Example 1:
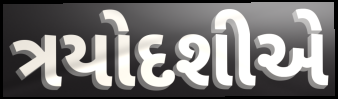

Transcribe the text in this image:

ત્રયોદશીએ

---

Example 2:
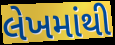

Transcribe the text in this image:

લેખમાંથી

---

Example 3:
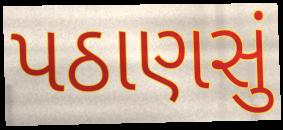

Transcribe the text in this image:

પઠાણસું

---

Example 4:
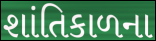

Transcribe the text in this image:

શાંતિકાળના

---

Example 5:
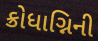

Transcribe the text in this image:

ક્રોધાગ્નિની